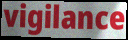
vigilance